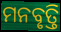
ମନବୃତ୍ତି